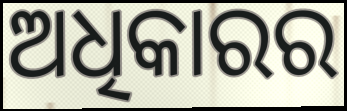
ଅଧିକାରର